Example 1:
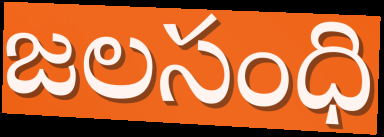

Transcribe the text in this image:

జలసంధి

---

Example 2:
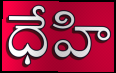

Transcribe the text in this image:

ధేహి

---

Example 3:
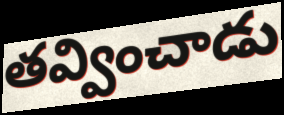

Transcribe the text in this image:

తవ్వించాడు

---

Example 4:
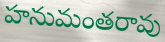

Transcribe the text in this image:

హనుమంతరావు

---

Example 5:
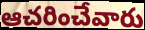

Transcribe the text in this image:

ఆచరించేవారు